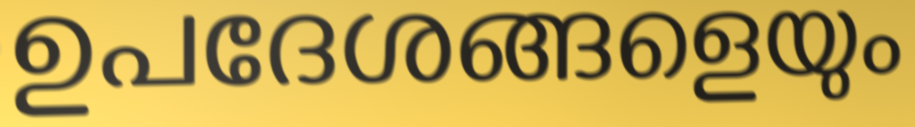
ഉപദേശങ്ങളെയും